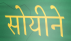
सोयीने